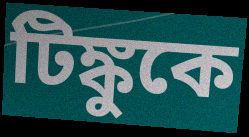
টিঙ্কুকে